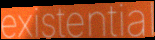
existential